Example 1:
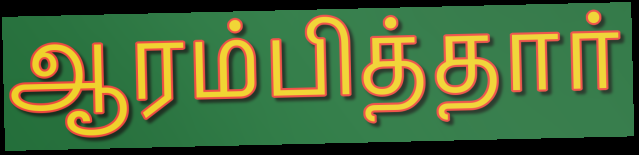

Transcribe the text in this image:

ஆரம்பித்தார்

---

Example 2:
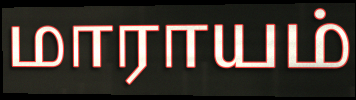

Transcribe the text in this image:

மாராயம்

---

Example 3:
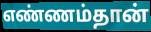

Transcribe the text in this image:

எண்ணம்தான்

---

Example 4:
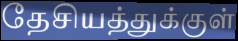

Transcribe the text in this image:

தேசியத்துக்குள்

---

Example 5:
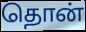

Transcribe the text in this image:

தொன்